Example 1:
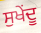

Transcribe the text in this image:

ਸੁਖੇਂਦੂ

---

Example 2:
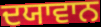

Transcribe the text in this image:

ਦਯਾਵਾਨ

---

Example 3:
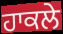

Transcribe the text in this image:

ਹਾਕਲੇ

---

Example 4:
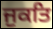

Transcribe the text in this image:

ਜੁਕਤਿ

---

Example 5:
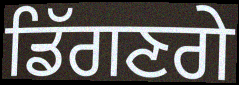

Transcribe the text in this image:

ਡਿੱਗਣਗੇ